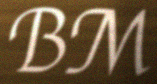
BM